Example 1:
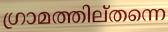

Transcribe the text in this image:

ഗ്രാമത്തില്തന്നെ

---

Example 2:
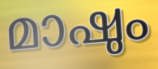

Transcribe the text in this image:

മാഷും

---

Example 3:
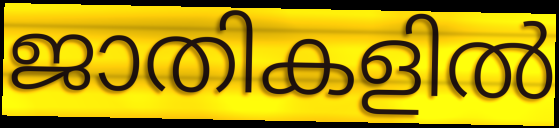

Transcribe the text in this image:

ജാതികളിൽ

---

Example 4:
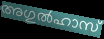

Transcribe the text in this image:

അഗുൽഹാസ്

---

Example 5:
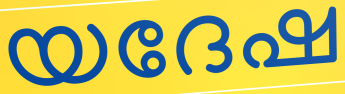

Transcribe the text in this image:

യദേഷ